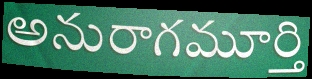
అనురాగమూర్తి